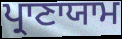
ਪ੍ਰਾਣਾਯਾਮ